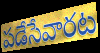
పడేసేవారట